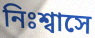
নিঃশ্বাসে